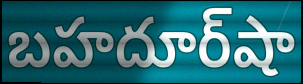
బహదూర్‌షా